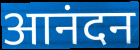
आनंदन